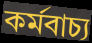
কৰ্মবাচ্য